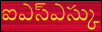
ఐఎస్ఎస్కు